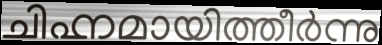
ചിഹ്നമായിത്തീർന്നു